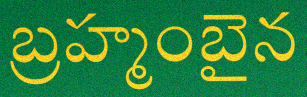
బ్రహ్మంబైన